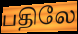
பதிலே